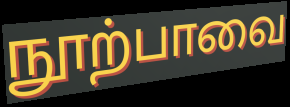
நூற்பாவை